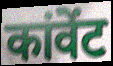
कांवेंट